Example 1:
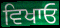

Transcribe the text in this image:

ਵਿਖਾਓ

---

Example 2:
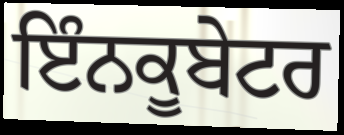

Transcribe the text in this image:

ਇੰਨਕੂਬੇਟਰ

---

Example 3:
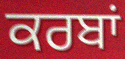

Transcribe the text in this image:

ਕਰਬਾਂ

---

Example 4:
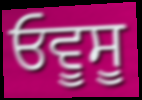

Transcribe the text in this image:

ਓਵੂਸੂ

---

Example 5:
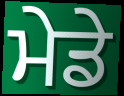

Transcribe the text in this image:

ਮੇਡੇ